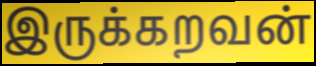
இருக்கறவன்